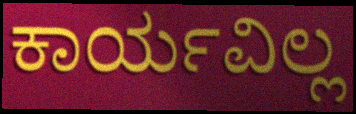
ಕಾರ್ಯವಿಲ್ಲ